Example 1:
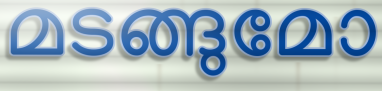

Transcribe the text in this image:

മടങ്ങുമോ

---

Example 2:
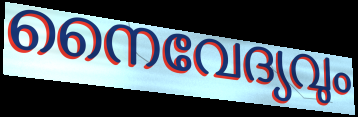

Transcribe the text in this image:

നൈവേദ്യവും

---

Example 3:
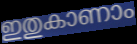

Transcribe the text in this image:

ഇതുകാണാം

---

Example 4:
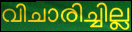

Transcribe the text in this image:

വിചാരിച്ചില്ല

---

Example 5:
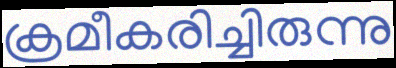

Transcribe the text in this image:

ക്രമീകരിച്ചിരുന്നു